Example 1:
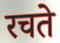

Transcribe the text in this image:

रचते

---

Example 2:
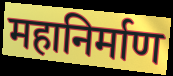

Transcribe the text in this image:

महानिर्माण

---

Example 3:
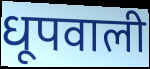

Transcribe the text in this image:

धूपवाली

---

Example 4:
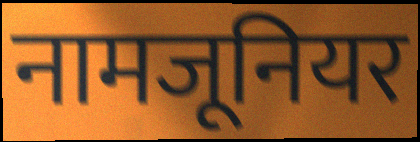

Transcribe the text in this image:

नामजूनियर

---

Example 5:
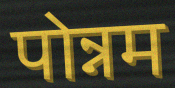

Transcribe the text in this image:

पोन्नम